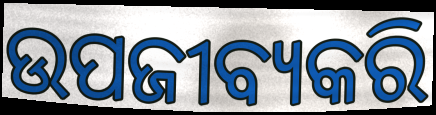
ଉପଜୀବ୍ୟକରି